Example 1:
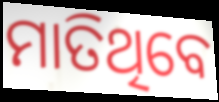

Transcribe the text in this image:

ମାତିଥିବେ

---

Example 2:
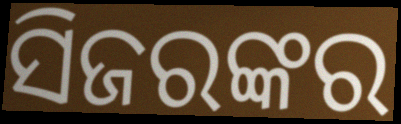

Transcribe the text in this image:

ସିଜରଙ୍କର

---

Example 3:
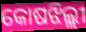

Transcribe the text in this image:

କୋଷଝିଲ୍ଲୀ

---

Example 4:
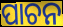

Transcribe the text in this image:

ପାଚନ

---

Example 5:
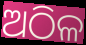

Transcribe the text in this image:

ଅଠିଳ